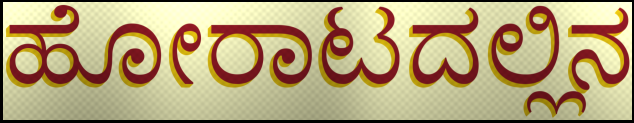
ಹೋರಾಟದಲ್ಲಿನ